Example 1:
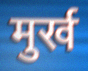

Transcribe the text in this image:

मुर्ख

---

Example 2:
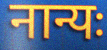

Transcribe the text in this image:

नान्यः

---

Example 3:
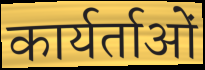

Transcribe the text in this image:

कार्यर्ताओं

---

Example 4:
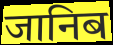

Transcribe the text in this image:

जानिब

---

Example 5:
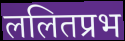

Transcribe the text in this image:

ललितप्रभ